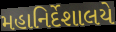
મહાનિર્દેશાલયે